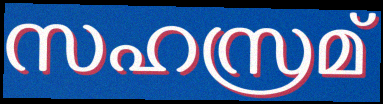
സഹസ്രമ്